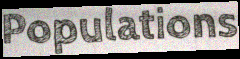
Populations